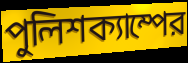
পুলিশক্যাম্পের